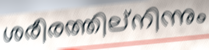
ശരീരത്തില്നിന്നും